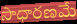
సాధారణమే